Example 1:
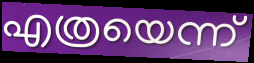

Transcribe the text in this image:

എത്രയെന്ന്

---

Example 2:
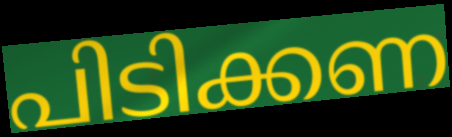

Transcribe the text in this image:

പിടിക്കണ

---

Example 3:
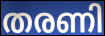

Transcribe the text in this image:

തരണി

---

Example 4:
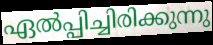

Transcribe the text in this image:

ഏൽപ്പിച്ചിരിക്കുന്നു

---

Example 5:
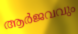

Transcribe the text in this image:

ആർജവവും